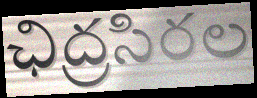
ఛిద్రసిరల